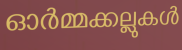
ഓർമ്മക്കല്ലുകൾ